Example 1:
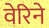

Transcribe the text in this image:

वेरिने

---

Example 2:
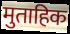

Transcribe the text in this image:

मुताहिक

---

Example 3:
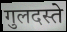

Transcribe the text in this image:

गुलदस्ते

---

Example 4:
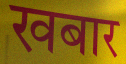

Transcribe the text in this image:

खबार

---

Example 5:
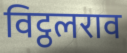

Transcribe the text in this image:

विट्ठलराव